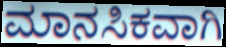
ಮಾನಸಿಕವಾಗಿ